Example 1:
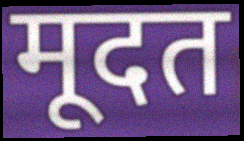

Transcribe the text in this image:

मूदत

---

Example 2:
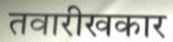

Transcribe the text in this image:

तवारीखकार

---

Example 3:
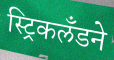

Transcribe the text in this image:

स्ट्रिकलँडने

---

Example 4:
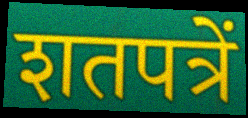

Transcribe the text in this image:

शतपत्रें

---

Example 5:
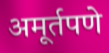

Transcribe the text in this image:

अमूर्तपणे